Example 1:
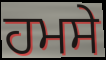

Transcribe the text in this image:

ਹਮਸੇ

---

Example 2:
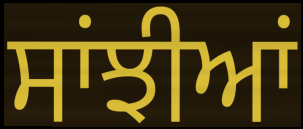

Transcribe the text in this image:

ਸਾਂਝੀਆਂ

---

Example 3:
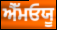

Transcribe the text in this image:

ਐੱਮਓਯੂ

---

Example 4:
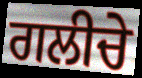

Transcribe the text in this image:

ਗਲੀਚੇ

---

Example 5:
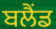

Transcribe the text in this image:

ਬਲੈਂਡ